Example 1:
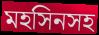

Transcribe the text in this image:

মহসিনসহ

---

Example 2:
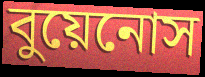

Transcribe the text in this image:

বুয়েনোস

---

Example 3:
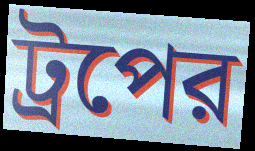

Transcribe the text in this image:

ট্রপের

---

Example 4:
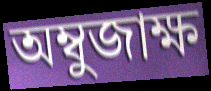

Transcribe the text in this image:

অম্বুজাক্ষ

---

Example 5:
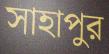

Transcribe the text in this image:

সাহাপুর